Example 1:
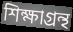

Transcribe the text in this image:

শিক্ষাগ্রন্থ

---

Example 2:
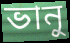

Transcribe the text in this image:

ভানু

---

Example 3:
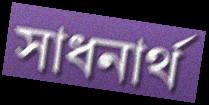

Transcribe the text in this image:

সাধনার্থ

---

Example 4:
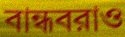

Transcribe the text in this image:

বান্ধবরাও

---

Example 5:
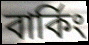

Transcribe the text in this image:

বার্কিং